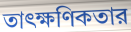
তাৎক্ষণিকতার